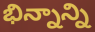
భిన్నాన్ని